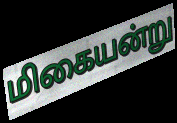
மிகையன்று